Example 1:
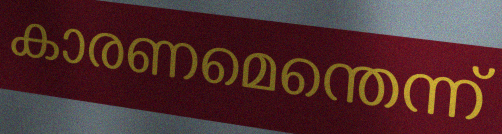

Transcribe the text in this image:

കാരണമെന്തെന്ന്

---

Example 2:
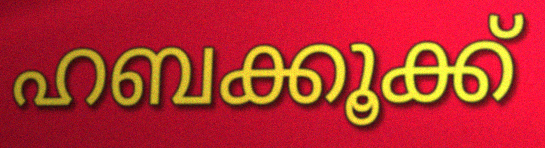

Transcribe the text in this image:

ഹബക്കൂക്ക്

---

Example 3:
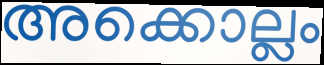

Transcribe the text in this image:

അക്കൊല്ലം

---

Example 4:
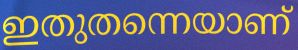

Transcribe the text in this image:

ഇതുതന്നെയാണ്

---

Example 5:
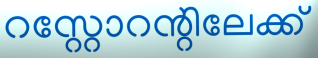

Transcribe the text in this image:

റസ്റ്റോറന്റിലേക്ക്